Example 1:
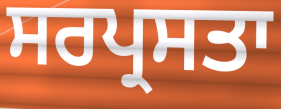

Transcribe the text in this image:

ਸਰਪ੍ਰਸਤਾ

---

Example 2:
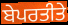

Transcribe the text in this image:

ਬੇਪਰਤੀਤੇ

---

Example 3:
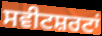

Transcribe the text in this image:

ਸਵੀਟਸ਼ਰਟਾਂ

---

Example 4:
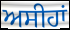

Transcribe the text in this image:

ਅਸੀਹਾਂ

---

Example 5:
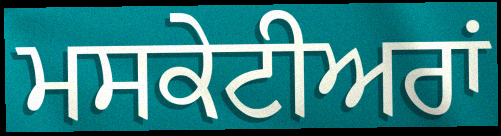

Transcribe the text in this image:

ਮਸਕੇਟੀਅਰਾਂ